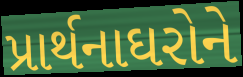
પ્રાર્થનાઘરોને